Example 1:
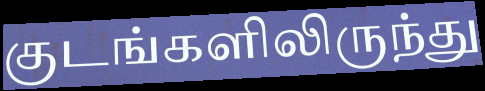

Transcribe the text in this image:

குடங்களிலிருந்து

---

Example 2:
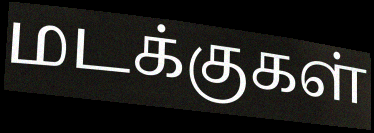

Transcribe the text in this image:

மடக்குகள்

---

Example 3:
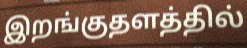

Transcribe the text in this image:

இறங்குதளத்தில்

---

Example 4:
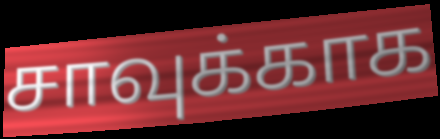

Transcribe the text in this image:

சாவுக்காக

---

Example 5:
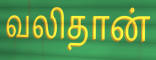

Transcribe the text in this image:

வலிதான்